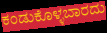
ಕಂಡುಕೊಳ್ಳಬಾರದು